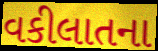
વકીલાતના